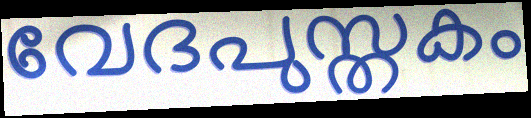
വേദപുസ്തകം